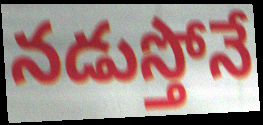
నడుస్తోనే